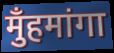
मुँहमांगा